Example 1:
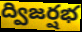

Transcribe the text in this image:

ద్విజర్షభ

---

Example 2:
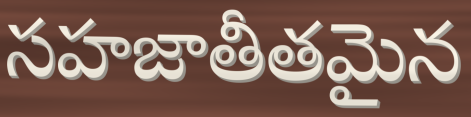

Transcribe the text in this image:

సహజాతీతమైన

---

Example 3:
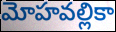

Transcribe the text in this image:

మోహవల్లికా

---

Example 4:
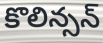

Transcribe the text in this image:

కొలిన్సన్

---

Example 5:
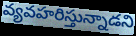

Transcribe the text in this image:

వ్యవహరిస్తున్నాడని